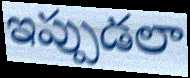
ఇప్పుడలా